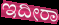
ಇದೀರಾ